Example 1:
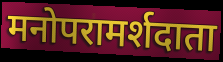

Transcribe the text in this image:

मनोपरामर्शदाता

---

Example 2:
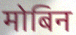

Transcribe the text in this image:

मोबिन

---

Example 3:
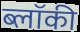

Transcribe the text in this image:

ब्लॉकी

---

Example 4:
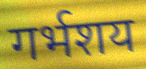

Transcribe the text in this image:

गर्भशय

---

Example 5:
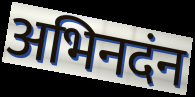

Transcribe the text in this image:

अभिनदंन